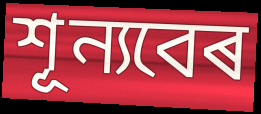
শূন্যবেৰ